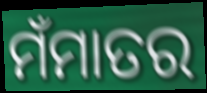
ମଁମାତର